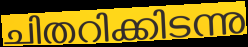
ചിതറിക്കിടന്നു